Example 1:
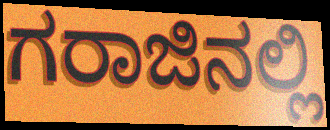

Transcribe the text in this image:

ಗರಾಜಿನಲ್ಲಿ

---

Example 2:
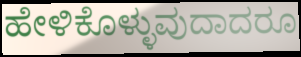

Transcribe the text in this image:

ಹೇಳಿಕೊಳ್ಳುವುದಾದರೂ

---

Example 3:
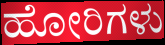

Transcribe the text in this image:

ಹೋರಿಗಳು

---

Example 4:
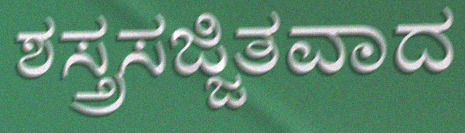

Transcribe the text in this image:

ಶಸ್ತ್ರಸಜ್ಜಿತವಾದ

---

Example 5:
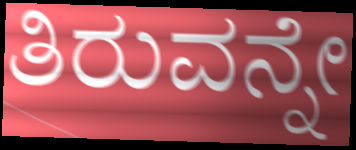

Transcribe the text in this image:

ತಿರುವನ್ನೇ